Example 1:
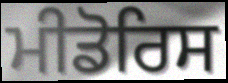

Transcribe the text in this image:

ਮੀਡੋਰਿਸ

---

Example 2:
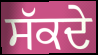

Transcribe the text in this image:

ਸੱਕਦੇ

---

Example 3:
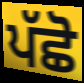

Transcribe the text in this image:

ਪੱਛੋ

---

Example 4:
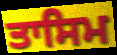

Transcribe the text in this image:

ਤਾਸਿਮ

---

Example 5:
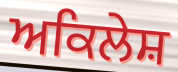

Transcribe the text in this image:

ਅਕਿਲੇਸ਼